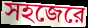
সহজেরে